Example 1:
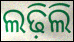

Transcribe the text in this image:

ଲଢ଼ିଲି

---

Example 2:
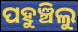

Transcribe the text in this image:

ପହୁଞ୍ଚିଲୁ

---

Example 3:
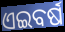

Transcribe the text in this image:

ଏଇବର୍ଷ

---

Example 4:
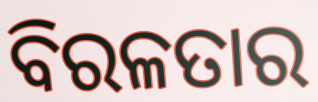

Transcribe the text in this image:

ବିରଳତାର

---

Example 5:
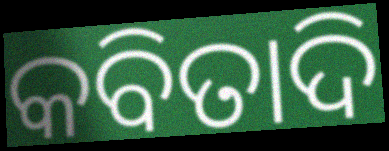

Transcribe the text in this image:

କବିତାଦି